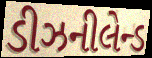
ડીઝનીલેન્ડ